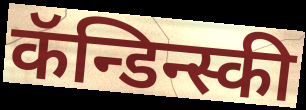
कॅन्डिन्स्की